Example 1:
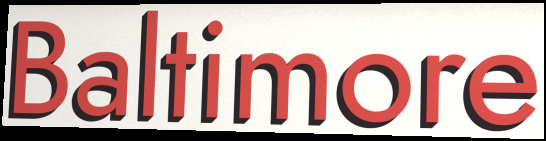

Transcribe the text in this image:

Baltimore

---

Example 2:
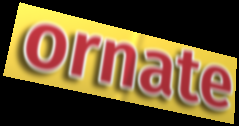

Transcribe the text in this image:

ornate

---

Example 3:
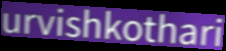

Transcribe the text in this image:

urvishkothari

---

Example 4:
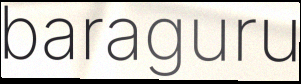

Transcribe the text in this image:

baraguru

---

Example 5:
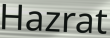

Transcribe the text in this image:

Hazrat